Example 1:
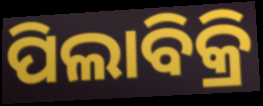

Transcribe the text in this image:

ପିଲାବିକ୍ରି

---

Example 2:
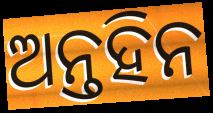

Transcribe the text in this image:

ଅନ୍ତହିନ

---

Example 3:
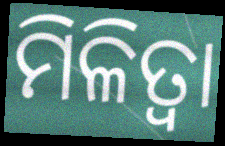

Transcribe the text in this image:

ମିଳିତ୍ଵା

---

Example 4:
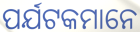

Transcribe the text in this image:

ପର୍ଯଟକମାନେ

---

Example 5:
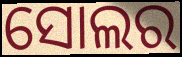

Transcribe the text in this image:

ସୋଲର